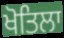
ਖੋਤਿਲਾ